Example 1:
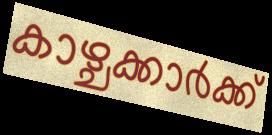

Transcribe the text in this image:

കാഴ്ചക്കാർക്ക്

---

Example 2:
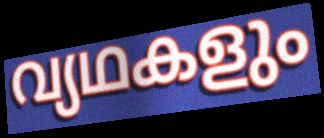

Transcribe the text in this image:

വ്യഥകളും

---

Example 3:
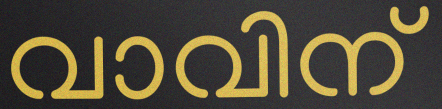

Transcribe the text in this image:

വാവിന്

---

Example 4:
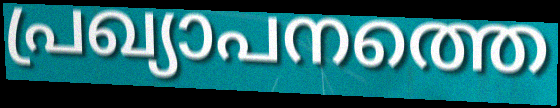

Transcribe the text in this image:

പ്രഖ്യാപനത്തെ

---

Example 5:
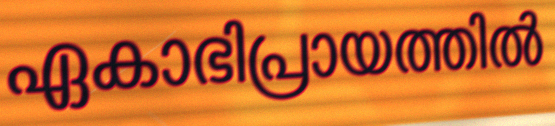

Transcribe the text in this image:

ഏകാഭിപ്രായത്തിൽ